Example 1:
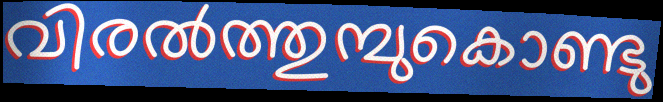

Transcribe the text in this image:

വിരൽത്തുമ്പുകൊണ്ടു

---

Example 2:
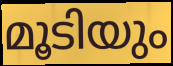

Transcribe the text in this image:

മൂടിയും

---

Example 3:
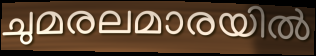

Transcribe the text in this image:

ചുമരലമാരയിൽ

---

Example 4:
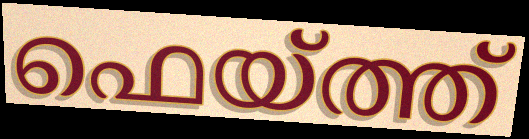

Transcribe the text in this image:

ഫെയ്ത്ത്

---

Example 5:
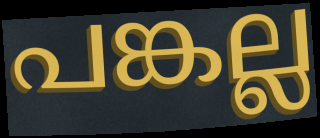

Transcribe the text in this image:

പങ്കല്ല